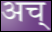
अच्